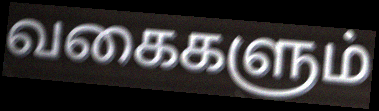
வகைகளும்